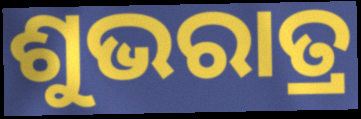
ଶୁଭରାତ୍ର